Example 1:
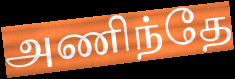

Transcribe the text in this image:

அணிந்தே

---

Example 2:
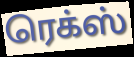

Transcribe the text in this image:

ரெக்ஸ்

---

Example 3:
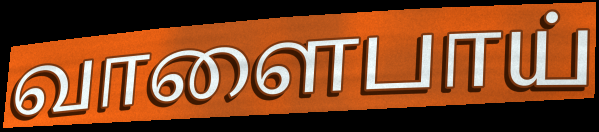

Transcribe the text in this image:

வாளைபாய்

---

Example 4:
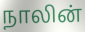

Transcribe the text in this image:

நாலின்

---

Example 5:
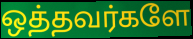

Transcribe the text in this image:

ஒத்தவர்களே